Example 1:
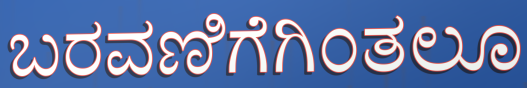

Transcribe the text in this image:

ಬರವಣಿಗೆಗಿಂತಲೂ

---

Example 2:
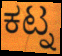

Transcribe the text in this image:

ಕಟ್ನ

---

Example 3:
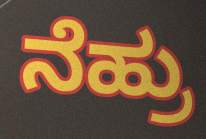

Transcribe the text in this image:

ನೆಹ್ರು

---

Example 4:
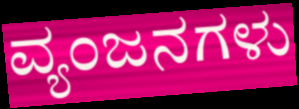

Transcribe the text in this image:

ವ್ಯಂಜನಗಳು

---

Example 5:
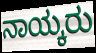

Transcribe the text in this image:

ನಾಯ್ಕರು